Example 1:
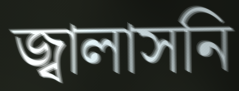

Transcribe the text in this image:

জ্বালাসনি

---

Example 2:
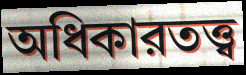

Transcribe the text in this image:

অধিকারতত্ত্ব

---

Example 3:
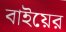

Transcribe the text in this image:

বাইয়ের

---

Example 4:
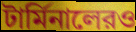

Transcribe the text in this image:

টার্মিনালেরও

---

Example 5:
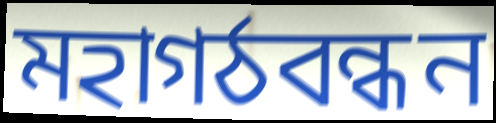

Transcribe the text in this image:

মহাগঠবন্ধন